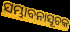
ସମ୍ଭାବନାସୂଚକ